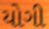
યોગી